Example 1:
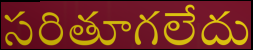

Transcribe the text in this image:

సరితూగలేదు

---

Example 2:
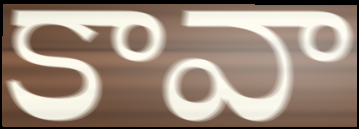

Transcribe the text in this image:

కావా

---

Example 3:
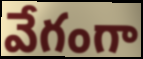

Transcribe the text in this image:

వేగంగా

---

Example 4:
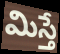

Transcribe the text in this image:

మిస్తే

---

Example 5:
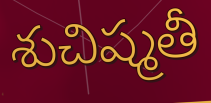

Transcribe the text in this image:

శుచిష్మతీ